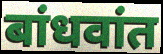
बांधवांत